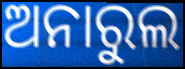
ଅନାରୁଲ